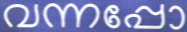
വന്നപ്പോ